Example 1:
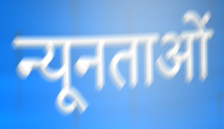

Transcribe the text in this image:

न्यूनताओं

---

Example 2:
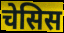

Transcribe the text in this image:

चेसिस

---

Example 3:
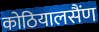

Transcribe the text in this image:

कोठियालसैंण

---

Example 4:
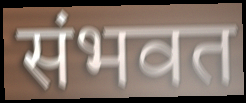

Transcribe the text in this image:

संभवत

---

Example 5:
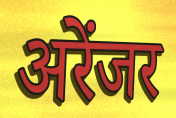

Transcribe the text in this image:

अरेंजर